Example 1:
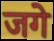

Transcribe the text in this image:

जगे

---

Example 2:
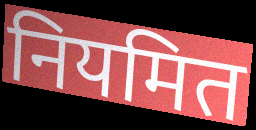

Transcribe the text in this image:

नियमित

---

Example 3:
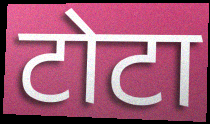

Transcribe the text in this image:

टोटा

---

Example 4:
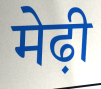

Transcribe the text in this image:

मेढ़ी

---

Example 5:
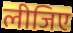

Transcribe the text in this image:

लीजिए